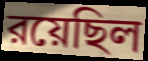
রয়েছিল